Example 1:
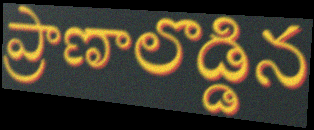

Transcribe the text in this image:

ప్రాణాలొడ్డిన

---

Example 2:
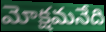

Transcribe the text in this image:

మోక్షమనేది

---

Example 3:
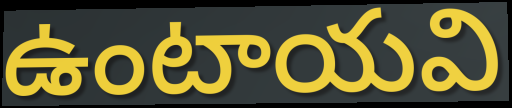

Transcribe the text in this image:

ఉంటాయవి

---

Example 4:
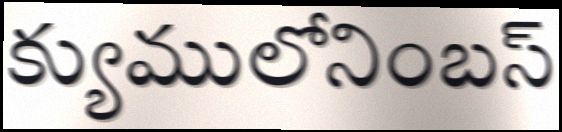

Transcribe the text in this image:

క్యుములోనింబస్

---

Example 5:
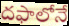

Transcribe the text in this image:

దఫాలోనే